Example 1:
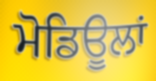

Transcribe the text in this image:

ਮੋਡਿਊਲਾਂ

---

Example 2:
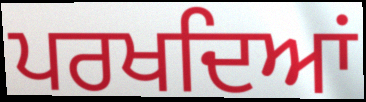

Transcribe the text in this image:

ਪਰਖਦਿਆਂ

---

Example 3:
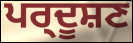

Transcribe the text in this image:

ਪਰ੍ਦੂਸ਼ਣ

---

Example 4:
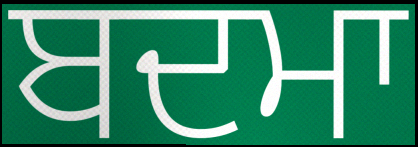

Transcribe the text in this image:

ਬਦਮਾ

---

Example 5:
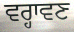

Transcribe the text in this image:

ਵਰ੍ਹਾਵਣ